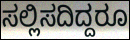
ಸಲ್ಲಿಸದಿದ್ದರೂ